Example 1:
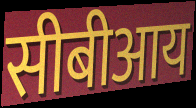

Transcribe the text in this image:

सीबीआय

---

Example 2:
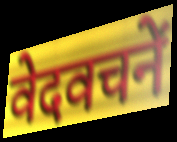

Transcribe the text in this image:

वेदवचनें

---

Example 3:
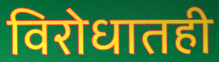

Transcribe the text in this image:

विरोधातही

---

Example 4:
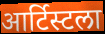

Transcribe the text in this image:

आर्टिस्टला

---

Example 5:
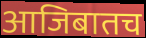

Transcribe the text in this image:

आजिबातच